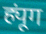
ह्यूंग